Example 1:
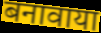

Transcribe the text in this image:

बनावाया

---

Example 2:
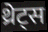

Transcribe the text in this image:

थ्रेट्स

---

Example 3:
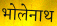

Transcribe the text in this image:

भोलेनाथ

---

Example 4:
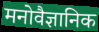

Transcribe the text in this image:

मनोवैज्ञानिक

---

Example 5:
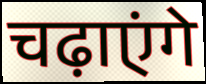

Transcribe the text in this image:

चढ़ाएंगे